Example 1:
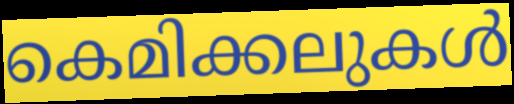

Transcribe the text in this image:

കെമിക്കലുകൾ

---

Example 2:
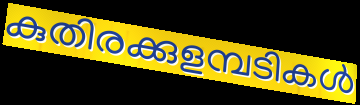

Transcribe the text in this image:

കുതിരക്കുളമ്പടികൾ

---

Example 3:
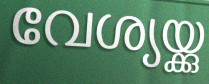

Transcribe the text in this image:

വേശ്യയ്ക്കു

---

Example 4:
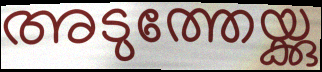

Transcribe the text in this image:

അടുത്തേയ്ക്കു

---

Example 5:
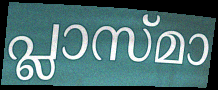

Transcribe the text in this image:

പ്ലാസ്മാ